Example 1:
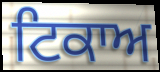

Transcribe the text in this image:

ਟਿਕਾਅ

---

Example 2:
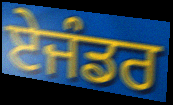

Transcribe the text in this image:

ਏਜੰਡਰ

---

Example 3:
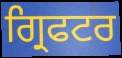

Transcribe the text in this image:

ਗ੍ਰਿਫਟਰ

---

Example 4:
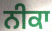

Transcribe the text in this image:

ਨੀਕਾ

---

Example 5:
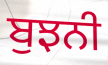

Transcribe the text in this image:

ਬੁਝਨੀ